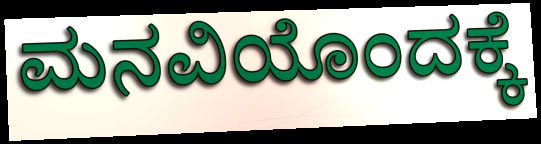
ಮನವಿಯೊಂದಕ್ಕೆ